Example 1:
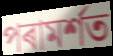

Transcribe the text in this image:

পৰামৰ্শত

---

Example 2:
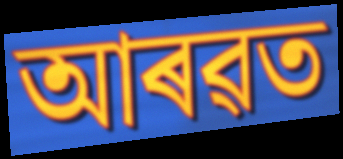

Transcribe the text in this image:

আৰৱত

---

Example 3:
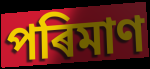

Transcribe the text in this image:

পৰিমাণ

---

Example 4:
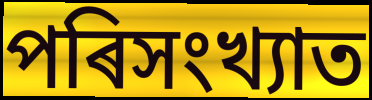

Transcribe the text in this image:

পৰিসংখ্যাত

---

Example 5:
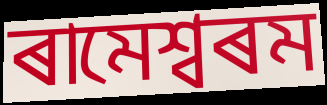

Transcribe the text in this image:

ৰামেশ্বৰম